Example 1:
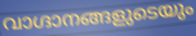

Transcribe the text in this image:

വാഗ്ദാനങ്ങളുടെയും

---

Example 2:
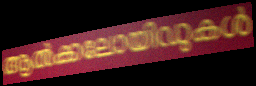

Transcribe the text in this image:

ആൽക്കലോയിഡുകൾ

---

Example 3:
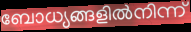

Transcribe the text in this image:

ബോധ്യങ്ങളിൽനിന്ന്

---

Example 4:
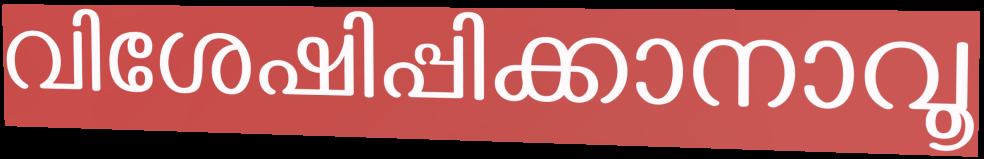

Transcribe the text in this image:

വിശേഷിപ്പിക്കാനാവൂ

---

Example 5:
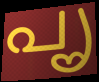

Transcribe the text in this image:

പൄ